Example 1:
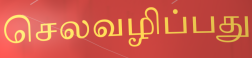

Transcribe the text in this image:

செலவழிப்பது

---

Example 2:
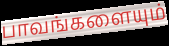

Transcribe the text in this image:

பாவங்களையும்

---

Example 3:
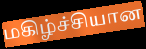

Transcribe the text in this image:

மகிழ்ச்சியான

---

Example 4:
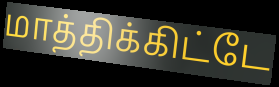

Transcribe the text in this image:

மாத்திக்கிட்டே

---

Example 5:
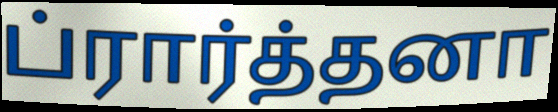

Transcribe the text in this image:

ப்ரார்த்தனா